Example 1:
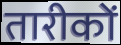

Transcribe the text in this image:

तारीकों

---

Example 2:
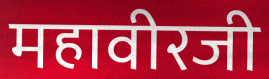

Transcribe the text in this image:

महावीरजी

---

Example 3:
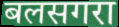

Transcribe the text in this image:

बलसगरा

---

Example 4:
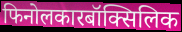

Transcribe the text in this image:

फिनोलकारबॉक्सिलिक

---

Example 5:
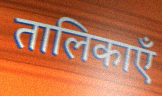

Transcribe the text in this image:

तालिकाएँ